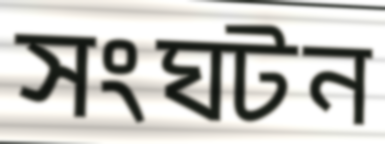
সংঘটন